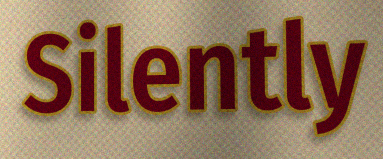
Silently